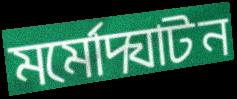
মর্মোদ্ঘাটন